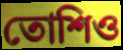
তোশিও